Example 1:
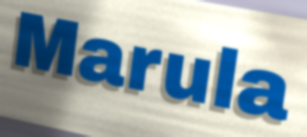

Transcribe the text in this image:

Marula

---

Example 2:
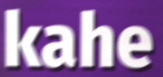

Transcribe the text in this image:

kahe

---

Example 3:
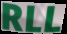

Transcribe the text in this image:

RLL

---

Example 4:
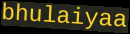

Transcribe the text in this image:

bhulaiyaa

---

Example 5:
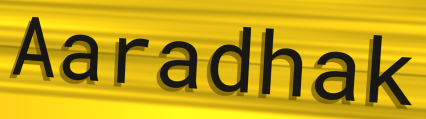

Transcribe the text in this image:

Aaradhak